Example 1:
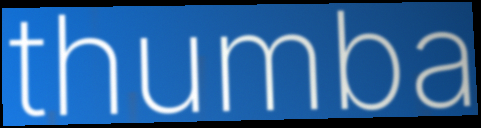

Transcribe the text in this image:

thumba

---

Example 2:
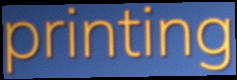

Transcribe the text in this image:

printing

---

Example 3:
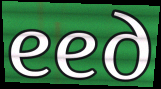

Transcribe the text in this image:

eed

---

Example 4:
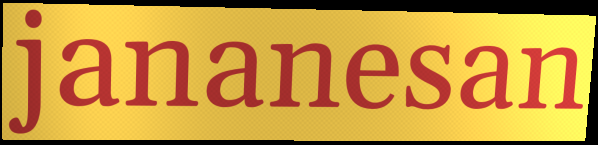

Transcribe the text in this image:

jananesan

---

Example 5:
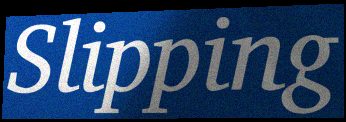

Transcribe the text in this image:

Slipping